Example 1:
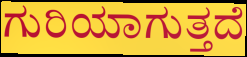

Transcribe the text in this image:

ಗುರಿಯಾಗುತ್ತದೆ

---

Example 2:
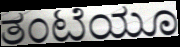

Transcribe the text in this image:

ತಂಟೆಯೂ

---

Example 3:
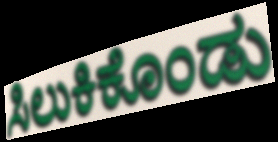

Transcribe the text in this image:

ಸಿಲುಕಿಕೊಂಡು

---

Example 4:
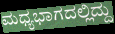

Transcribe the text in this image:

ಮಧ್ಯಭಾಗದಲ್ಲಿದ್ದು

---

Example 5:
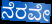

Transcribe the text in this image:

ನೆರವೇ